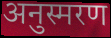
अनुस्मरण